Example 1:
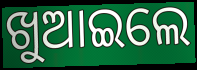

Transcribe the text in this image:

ଖୁଆଇଲେ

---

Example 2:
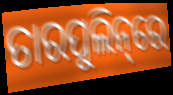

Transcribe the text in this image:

ତାରପୁଲିନ୍‌ରେ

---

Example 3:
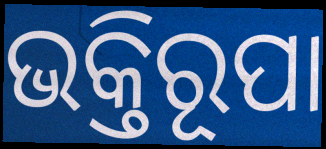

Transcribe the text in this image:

ଭକ୍ତିରୂପା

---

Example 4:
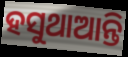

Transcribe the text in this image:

ହସୁଥାଆନ୍ତି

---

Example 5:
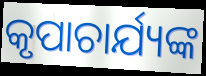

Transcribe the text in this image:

କୃପାଚାର୍ଯ୍ୟଙ୍କ